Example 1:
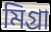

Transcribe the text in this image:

মিগ্রা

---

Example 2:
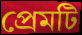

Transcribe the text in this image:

প্রেমটি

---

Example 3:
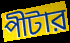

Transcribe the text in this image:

পীটার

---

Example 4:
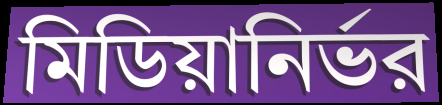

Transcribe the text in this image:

মিডিয়ানির্ভর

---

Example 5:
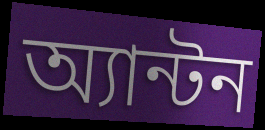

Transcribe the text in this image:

অ্যান্টন